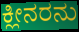
ಕ್ಲೀನರನು